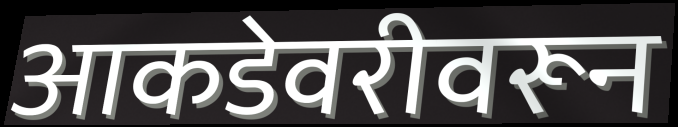
आकडेवरीवरून